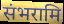
संभरामि